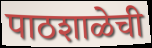
पाठशाळेची